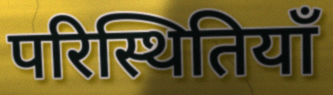
परिस्थितियाँ